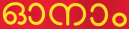
ഓനാം